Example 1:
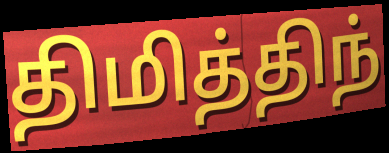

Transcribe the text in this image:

திமித்திந்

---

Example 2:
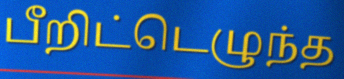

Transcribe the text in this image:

பீறிட்டெழுந்த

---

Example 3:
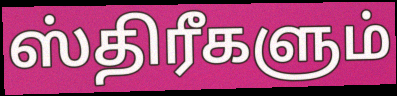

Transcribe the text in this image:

ஸ்திரீகளும்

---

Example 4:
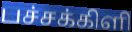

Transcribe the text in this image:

பச்சக்கிளி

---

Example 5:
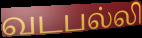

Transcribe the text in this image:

வடபல்லி